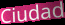
Ciudad